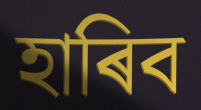
হাৰিব